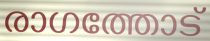
രാഗത്തോട്